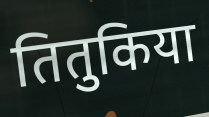
तितुकिया